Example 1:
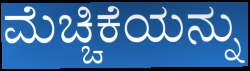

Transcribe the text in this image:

ಮೆಚ್ಚಿಕೆಯನ್ನು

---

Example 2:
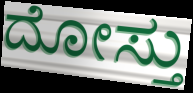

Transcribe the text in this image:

ದೋಸ್ತು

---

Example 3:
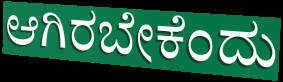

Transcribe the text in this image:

ಆಗಿರಬೇಕೆಂದು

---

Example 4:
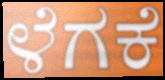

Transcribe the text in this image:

ಳೆಗಕೆ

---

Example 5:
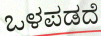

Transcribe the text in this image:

ಒಳಪಡದೆ